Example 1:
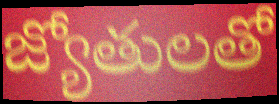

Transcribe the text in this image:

జ్యోతులతో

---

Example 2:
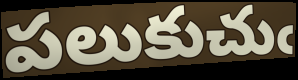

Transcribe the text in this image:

పలుకుచుఁ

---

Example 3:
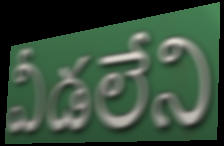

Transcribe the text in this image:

వీడలేని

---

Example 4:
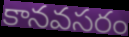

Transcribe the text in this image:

కానవసరం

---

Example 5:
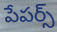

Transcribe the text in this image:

పేపర్స్